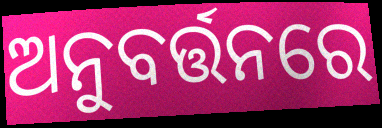
ଅନୁବର୍ତ୍ତନରେ